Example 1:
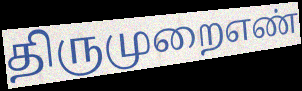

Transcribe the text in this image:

திருமுறைஎண்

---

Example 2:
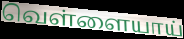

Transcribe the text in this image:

வெள்ளையாய்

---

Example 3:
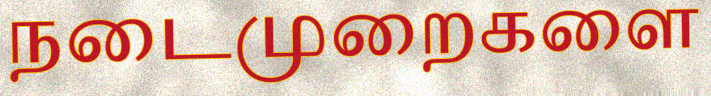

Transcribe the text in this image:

நடைமுறைகளை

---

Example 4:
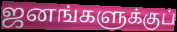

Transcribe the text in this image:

ஜனங்களுக்குப்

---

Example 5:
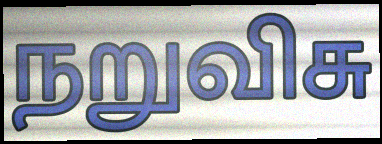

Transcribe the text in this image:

நறுவிசு